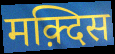
मक़्दिस